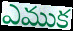
ఎముక